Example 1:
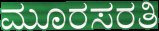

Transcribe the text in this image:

ಮೂರಸರತಿ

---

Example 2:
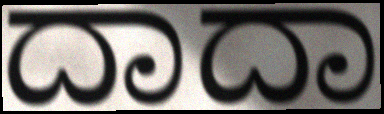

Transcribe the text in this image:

ದಾದಾ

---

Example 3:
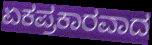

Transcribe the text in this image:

ಏಕಪ್ರಕಾರವಾದ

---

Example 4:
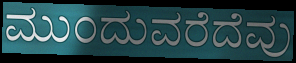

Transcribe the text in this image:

ಮುಂದುವರೆದೆವು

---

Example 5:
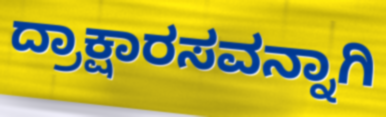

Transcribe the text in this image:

ದ್ರಾಕ್ಷಾರಸವನ್ನಾಗಿ